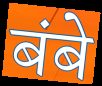
बंबे